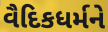
વૈદિકધર્મને